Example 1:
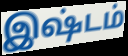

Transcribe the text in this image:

இஷ்டம்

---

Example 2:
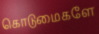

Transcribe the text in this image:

கொடுமைகளே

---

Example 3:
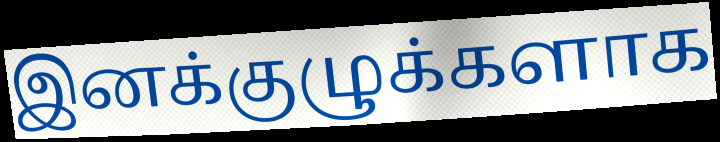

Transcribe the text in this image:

இனக்குழுக்களாக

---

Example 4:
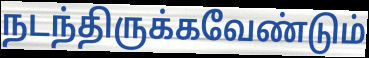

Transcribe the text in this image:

நடந்திருக்கவேண்டும்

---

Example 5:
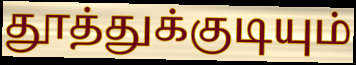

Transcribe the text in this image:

தூத்துக்குடியும்